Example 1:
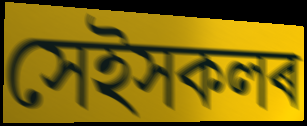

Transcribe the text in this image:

সেইসকলৰ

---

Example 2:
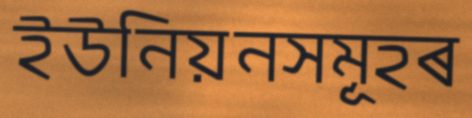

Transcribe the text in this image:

ইউনিয়নসমূহৰ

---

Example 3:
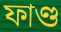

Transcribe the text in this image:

ফাণ্ড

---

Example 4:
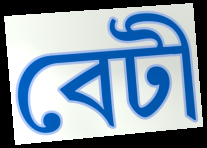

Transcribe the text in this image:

বেটী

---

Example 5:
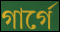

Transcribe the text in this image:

গাৰ্গে